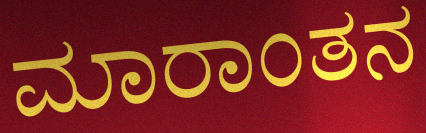
ಮಾರಾಂತನ